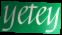
yetey